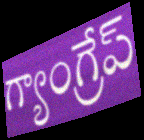
గ్యాంగ్రేప్